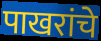
पाखरांचे